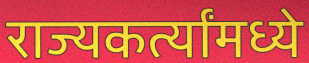
राज्यकर्त्यांमध्ये